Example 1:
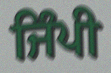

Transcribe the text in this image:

ਜਿੰਪੀ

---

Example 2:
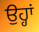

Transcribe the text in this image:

ਉਹ੍ਹਾਂ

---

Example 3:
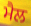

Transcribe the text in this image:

ਮੈਲ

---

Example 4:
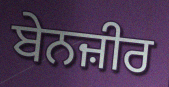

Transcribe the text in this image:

ਬੇਨਜ਼ੀਰ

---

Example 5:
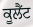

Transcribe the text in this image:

ਕੂਲੈਂਟ